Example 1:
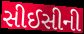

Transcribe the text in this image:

સીઈસીની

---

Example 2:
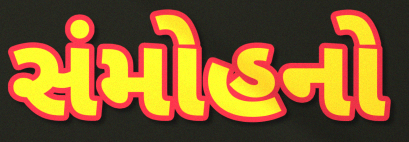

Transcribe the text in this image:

સંમોહનો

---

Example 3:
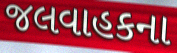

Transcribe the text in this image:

જલવાહકના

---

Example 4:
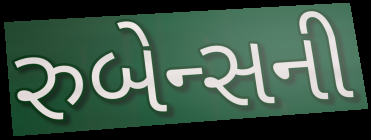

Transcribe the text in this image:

રુબેન્સની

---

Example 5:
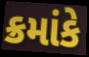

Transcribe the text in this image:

ક્રમાંકે